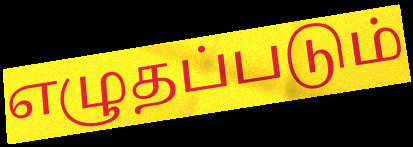
எழுதப்படும்